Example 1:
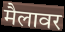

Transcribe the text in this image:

मैलावर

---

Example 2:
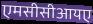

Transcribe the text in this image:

एमसीसीआयए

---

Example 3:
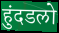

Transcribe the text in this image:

हुंदडलो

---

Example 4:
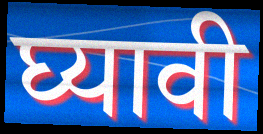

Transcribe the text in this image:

घ्यावी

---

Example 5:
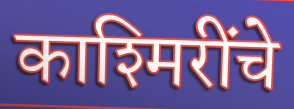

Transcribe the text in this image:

काश्मिरींचे